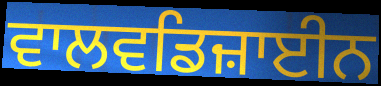
ਵਾਲਵਡਿਜ਼ਾਈਨ